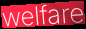
welfare